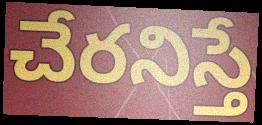
చేరనిస్తే